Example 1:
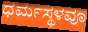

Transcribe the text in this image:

ಧರ್ಮಸ್ಥಳವೂ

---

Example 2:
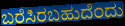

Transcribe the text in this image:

ಬರೆಸಿರಬಹುದೆಂದು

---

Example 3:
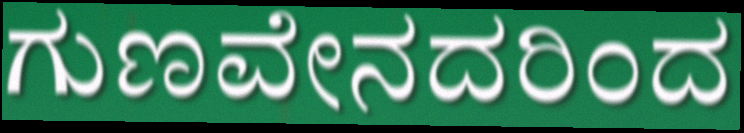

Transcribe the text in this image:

ಗುಣವೇನದರಿಂದ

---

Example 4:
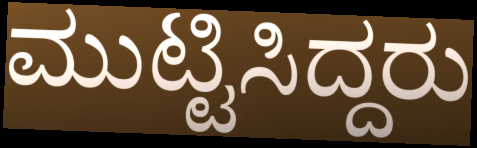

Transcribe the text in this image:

ಮುಟ್ಟಿಸಿದ್ದರು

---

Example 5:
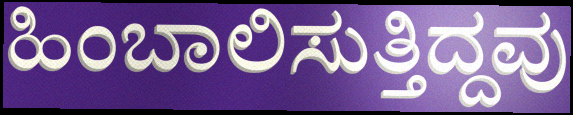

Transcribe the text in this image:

ಹಿಂಬಾಲಿಸುತ್ತಿದ್ದವು